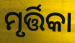
ମୃର୍ତ୍ତିକା